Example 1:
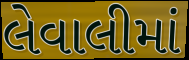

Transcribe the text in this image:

લેવાલીમાં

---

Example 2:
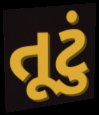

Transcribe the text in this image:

તૂટું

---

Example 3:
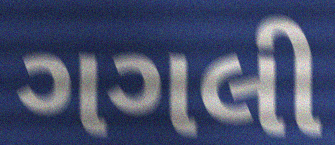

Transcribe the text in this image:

ગગલી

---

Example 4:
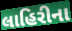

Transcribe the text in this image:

લાહિરીના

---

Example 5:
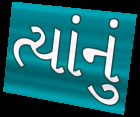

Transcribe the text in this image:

ત્યાંનું